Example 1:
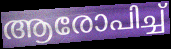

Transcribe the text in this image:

ആരോപിച്ച്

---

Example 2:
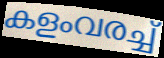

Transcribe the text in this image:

കളംവരച്ച്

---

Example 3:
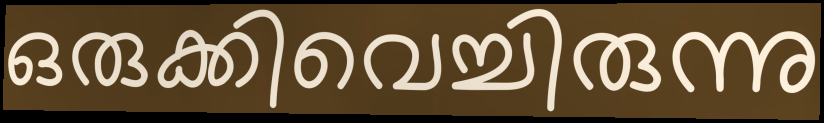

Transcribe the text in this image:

ഒരുക്കിവെച്ചിരുന്നു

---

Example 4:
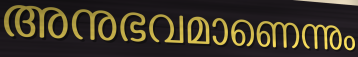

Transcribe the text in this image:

അനുഭവമാണെന്നും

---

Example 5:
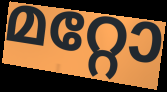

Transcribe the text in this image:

മറ്റോ